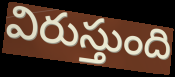
విరుస్తుంది